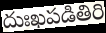
దుఃఖపడితిరి